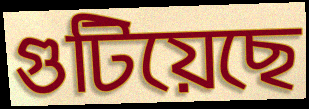
গুটিয়েছে